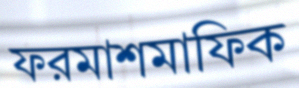
ফরমাশমাফিক